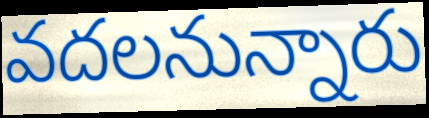
వదలనున్నారు